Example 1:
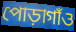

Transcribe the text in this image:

পোড়াগাঁও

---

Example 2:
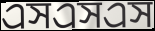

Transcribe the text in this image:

এসএসএস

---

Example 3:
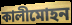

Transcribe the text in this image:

কালীমোহন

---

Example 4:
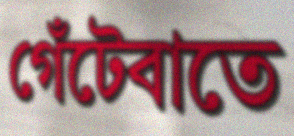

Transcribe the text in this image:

গেঁটেবাতে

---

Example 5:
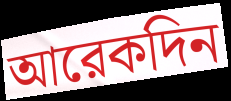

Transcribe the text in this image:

আরেকদিন